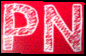
PN